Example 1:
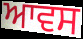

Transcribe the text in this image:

ਆਵਸ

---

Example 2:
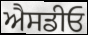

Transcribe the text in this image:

ਐਸਡੀਓ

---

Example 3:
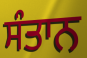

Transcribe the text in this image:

ਸੰਤਾਨ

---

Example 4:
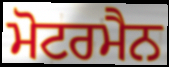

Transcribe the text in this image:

ਮੋਟਰਮੈਨ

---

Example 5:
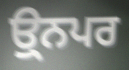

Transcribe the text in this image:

ਉ੍ਨਪਰ